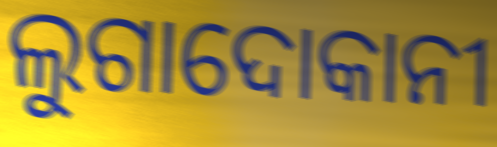
ଲୁଗାଦୋକାନୀ